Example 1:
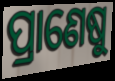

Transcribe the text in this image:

ପ୍ରାଣେଷୁ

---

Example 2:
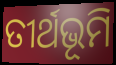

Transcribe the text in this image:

ତୀର୍ଥଭୂମି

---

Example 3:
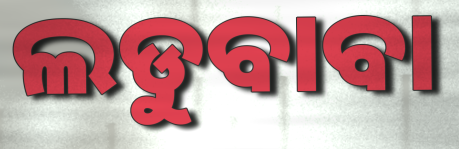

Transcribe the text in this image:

ଲଡୁବାବା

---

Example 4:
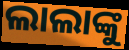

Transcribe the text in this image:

ଲାଲାଙ୍କୁ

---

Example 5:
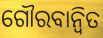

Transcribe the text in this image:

ଗୌରବାନ୍ୱିତ